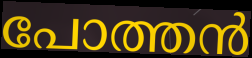
പോത്തൻ